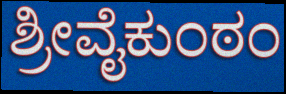
ಶ್ರೀವೈಕುಂಠಂ